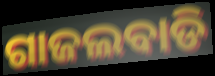
ଗାଜଲବାଡି